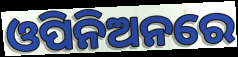
ଓପିନିଅନରେ